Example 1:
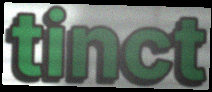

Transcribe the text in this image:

tinct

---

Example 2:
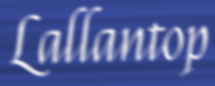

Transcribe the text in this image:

Lallantop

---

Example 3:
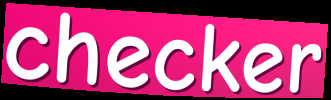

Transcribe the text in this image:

checker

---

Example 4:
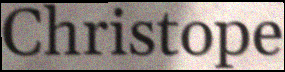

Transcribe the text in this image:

Christope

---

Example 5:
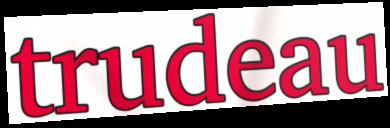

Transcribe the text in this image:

trudeau